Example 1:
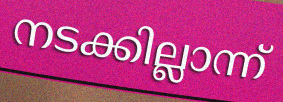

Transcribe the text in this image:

നടക്കില്ലാന്ന്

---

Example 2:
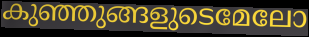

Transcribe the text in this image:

കുഞ്ഞുങ്ങളുടെമേലോ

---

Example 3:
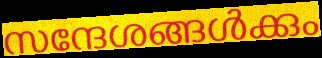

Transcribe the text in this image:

സന്ദേശങ്ങൾക്കും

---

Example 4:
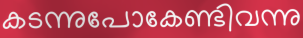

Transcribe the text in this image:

കടന്നുപോകേണ്ടിവന്നു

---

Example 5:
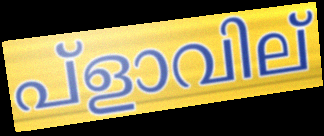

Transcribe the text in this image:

പ്ളാവില്